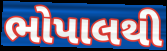
ભોપાલથી